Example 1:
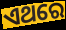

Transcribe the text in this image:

ଏଥରେ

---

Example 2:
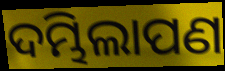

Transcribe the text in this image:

ଦମ୍ଭିଲାପଣ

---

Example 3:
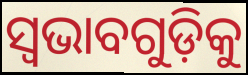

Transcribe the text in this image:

ସ୍ୱଭାବଗୁଡ଼ିକୁ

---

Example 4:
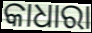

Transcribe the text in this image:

କାଧାରା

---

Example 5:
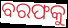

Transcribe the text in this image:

ବରଫକୁ